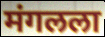
मंगलला